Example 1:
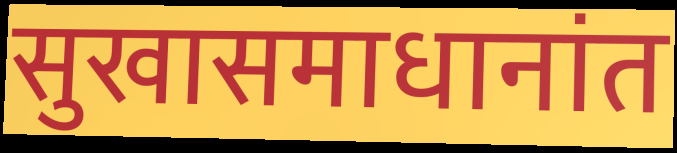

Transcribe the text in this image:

सुखासमाधानांत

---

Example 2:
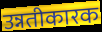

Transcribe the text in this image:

उन्नतीकारक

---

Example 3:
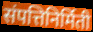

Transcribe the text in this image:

संपत्तिनिर्मिती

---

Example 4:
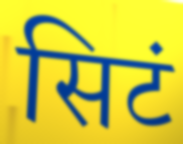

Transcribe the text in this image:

सिटं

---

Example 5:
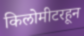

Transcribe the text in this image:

किलोमीटरहून